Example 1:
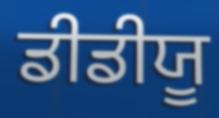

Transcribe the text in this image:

ਡੀਡੀਯੂ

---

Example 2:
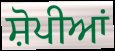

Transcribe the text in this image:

ਸ਼ੋਪੀਆਂ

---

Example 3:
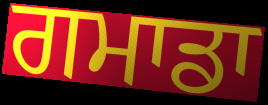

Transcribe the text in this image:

ਗਮਾਡਾ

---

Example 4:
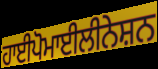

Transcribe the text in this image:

ਹਾਈਪੋਮਾਈਲੀਨੇਸ਼ਨ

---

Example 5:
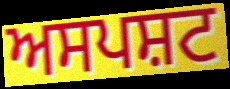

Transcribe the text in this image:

ਅਸਪਸ਼ਟ